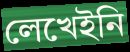
লেখেইনি